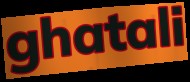
ghatali